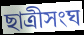
ছাত্রীসংঘ